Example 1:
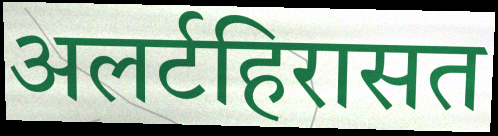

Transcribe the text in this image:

अलर्टहिरासत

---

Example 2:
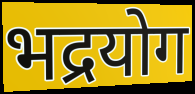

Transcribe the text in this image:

भद्रयोग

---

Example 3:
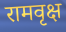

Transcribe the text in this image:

रामवृक्ष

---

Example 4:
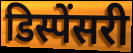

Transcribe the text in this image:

डिस्पेंसरी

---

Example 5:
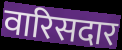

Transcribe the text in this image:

वारिसदार